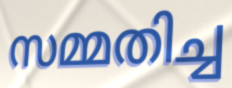
സമ്മതിച്ച